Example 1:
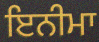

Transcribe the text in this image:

ਇਨੀਮਾ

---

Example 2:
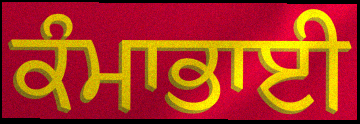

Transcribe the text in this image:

ਕੰਮਾਭਾਈ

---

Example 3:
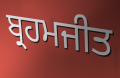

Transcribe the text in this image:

ਬ੍ਰਹਮਜੀਤ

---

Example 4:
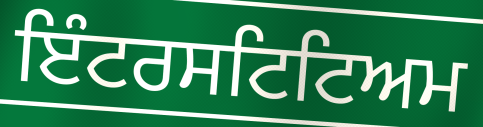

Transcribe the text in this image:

ਇੰਟਰਸਟਿਟਿਅਮ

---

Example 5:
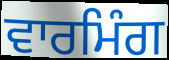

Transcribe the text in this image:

ਵਾਰਮਿੰਗ